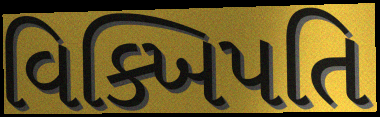
વિક્ખિપતિ